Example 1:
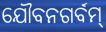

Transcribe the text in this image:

ଯୌବନଗର୍ବମ୍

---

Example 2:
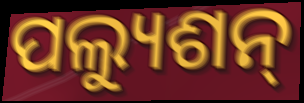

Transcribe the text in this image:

ପଲ୍ୟୁଶନ୍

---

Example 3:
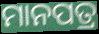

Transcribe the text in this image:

ମାନପତ୍ର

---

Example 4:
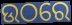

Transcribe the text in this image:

ଉଠରେ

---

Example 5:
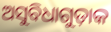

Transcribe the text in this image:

ଅସୁବିଧାଗୁଡ଼ାକ